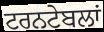
ਟਰਨਟੇਬਲਾਂ